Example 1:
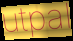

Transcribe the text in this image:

utpal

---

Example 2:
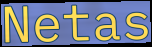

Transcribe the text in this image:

Netas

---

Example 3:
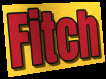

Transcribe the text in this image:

Fitch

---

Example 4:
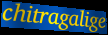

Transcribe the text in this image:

chitragalige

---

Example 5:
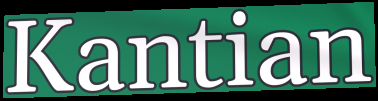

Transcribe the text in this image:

Kantian